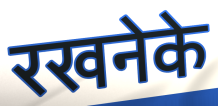
रखनेके